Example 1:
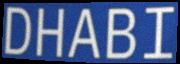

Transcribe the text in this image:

DHABI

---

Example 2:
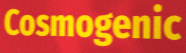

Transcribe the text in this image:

Cosmogenic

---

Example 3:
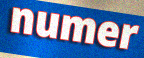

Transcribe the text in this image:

numer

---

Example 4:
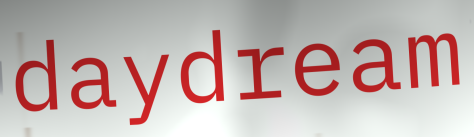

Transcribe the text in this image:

daydream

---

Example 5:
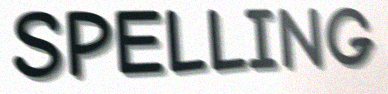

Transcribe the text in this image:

SPELLING